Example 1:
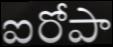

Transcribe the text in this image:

ఐరోపా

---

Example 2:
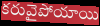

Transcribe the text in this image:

కరువైపోయాయి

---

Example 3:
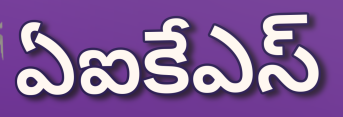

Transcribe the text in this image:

ఏఐకేఎస్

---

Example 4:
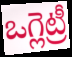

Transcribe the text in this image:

ఒగ్లెట్రీ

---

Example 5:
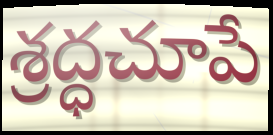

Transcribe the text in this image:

శ్రద్ధచూపే